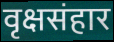
वृक्षसंहार